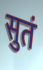
सुतं